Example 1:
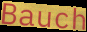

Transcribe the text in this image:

Bauch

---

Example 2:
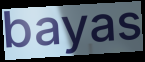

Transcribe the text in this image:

bayas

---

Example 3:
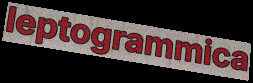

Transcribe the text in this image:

leptogrammica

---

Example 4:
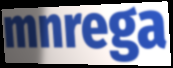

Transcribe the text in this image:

mnrega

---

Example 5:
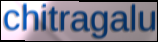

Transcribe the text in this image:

chitragalu